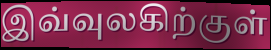
இவ்வுலகிற்குள்